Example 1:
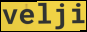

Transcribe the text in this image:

velji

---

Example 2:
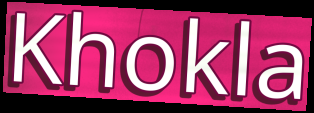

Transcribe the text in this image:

Khokla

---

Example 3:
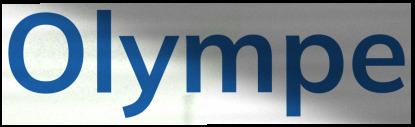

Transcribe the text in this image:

Olympe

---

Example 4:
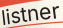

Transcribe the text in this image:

listner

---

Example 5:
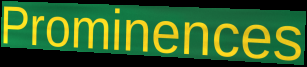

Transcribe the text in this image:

Prominences